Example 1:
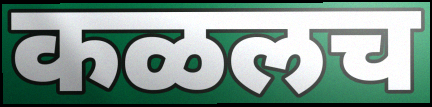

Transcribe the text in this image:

कळलच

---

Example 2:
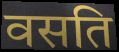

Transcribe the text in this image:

वसति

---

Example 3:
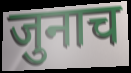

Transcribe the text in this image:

जुनाच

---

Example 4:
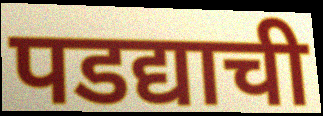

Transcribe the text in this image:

पडद्याची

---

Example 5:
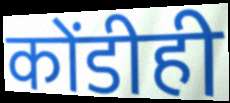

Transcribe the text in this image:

कोंडीही